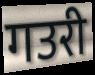
गउरी